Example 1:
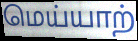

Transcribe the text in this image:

மெய்யாற்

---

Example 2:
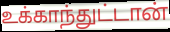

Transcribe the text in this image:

உக்காந்துட்டான்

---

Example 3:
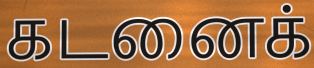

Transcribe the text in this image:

கடனைக்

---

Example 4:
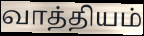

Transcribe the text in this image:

வாத்தியம்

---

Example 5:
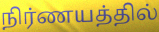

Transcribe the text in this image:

நிர்ணயத்தில்